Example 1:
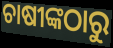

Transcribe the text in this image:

ଚାଷୀଙ୍କଠାରୁ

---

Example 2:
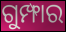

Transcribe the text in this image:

ଗୁମ୍ଫାର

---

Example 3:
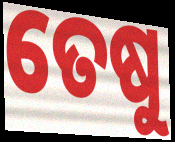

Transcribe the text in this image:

ତେଷୁ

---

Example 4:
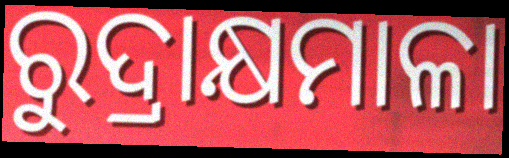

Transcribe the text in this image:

ରୁଦ୍ରାକ୍ଷମାଳା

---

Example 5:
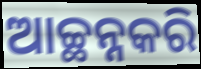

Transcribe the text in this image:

ଆଚ୍ଛନ୍ନକରି